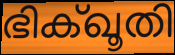
ഭിക്ഖൂതി